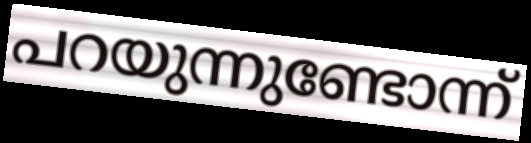
പറയുന്നുണ്ടോന്ന്